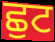
ਛੁਟ